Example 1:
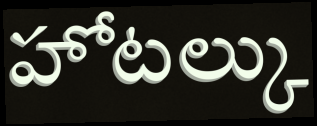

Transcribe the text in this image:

హోటల్కు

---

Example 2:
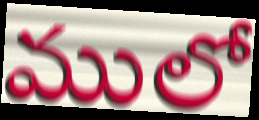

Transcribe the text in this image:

ములో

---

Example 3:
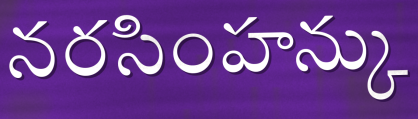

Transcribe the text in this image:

నరసింహన్కు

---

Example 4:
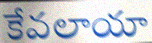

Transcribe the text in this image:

కేవలాయా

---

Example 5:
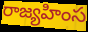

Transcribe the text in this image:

రాజ్యహింస